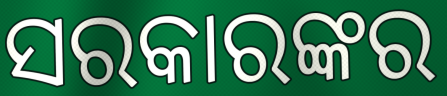
ସରକାରଙ୍କର